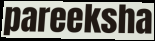
pareeksha